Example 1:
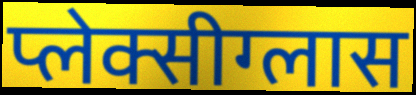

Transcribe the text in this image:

प्लेक्सीग्लास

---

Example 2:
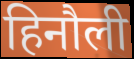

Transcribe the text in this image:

हिनौली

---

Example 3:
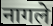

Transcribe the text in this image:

नागले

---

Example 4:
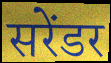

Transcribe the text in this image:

सरेंडर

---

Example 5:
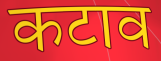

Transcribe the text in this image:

कटाव